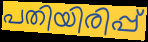
പതിയിരിപ്പ്